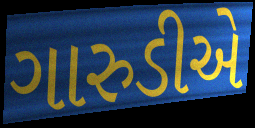
ગારુડીએ